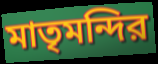
মাতৃমন্দির